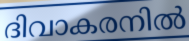
ദിവാകരനിൽ